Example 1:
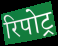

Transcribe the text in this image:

रिपोट्र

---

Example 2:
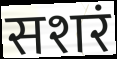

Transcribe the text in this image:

सशरं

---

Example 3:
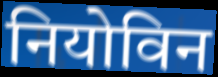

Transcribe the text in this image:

नियोविन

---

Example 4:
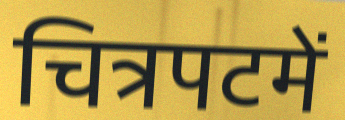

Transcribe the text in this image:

चित्रपटमें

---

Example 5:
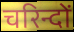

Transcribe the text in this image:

चरिन्दों